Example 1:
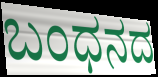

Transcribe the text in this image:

ಬಂಧನದ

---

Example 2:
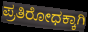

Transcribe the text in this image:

ಪ್ರತಿರೋಧಕ್ಕಾಗಿ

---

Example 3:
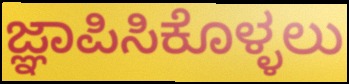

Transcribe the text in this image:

ಜ್ಞಾಪಿಸಿಕೊಳ್ಳಲು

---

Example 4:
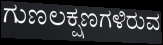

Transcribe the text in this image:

ಗುಣಲಕ್ಷಣಗಳಿರುವ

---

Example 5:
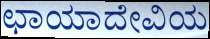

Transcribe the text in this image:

ಛಾಯಾದೇವಿಯ